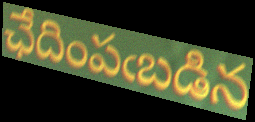
ఛేదింపఁబడిన